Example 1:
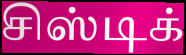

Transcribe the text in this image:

சிஸ்டிக்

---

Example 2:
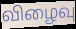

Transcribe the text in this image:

விழைவு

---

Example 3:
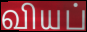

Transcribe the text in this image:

வியப்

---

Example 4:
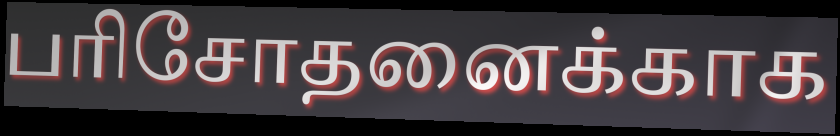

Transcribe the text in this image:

பரிசோதனைக்காக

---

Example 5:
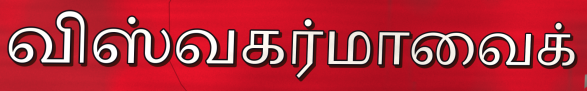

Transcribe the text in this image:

விஸ்வகர்மாவைக்